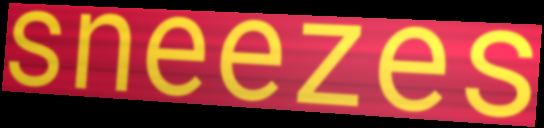
sneezes